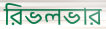
রিভলভার